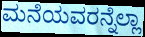
ಮನೆಯವರನ್ನೆಲ್ಲಾ